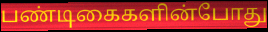
பண்டிகைகளின்போது